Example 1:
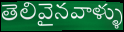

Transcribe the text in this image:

తెలివైనవాళ్ళు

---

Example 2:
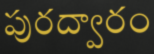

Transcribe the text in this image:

పురద్వారం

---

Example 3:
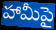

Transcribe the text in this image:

హామీపై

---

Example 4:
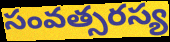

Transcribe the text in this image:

సంవత్సరస్య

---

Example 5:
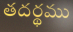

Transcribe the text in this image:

తదర్థము